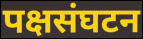
पक्षसंघटन